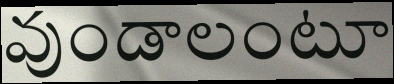
వుండాలంటూ